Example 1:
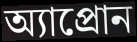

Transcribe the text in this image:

অ্যাপ্রোন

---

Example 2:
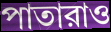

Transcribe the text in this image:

পাতারাও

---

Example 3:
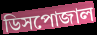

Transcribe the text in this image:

ডিসপোজাল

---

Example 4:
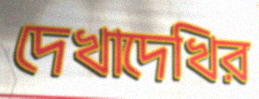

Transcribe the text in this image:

দেখাদেখির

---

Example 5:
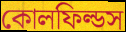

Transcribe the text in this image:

কোলফিল্ডস